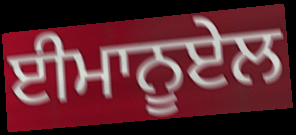
ਈਮਾਨੂਏਲ